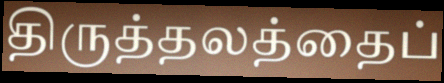
திருத்தலத்தைப்